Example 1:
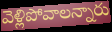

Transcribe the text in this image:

వెళ్లిపోవాలన్నారు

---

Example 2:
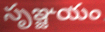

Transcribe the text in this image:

సృఞ్జయం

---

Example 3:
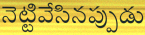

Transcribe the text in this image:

నెట్టివేసినప్పుడు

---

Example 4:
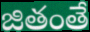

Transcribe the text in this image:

జితంతే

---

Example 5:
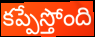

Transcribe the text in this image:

కప్పేస్తోంది